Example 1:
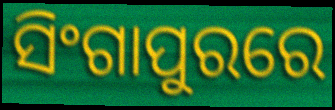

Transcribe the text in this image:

ସିଂଗାପୁରରେ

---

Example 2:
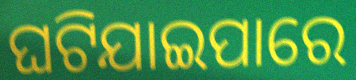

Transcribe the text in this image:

ଘଟିଯାଇପାରେ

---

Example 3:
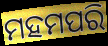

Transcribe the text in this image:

ମହମପରି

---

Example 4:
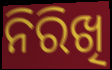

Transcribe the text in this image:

ନିରିଖି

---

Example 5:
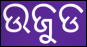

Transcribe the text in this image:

ଉଜୁଡ